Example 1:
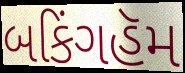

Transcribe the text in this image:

બકિંગહૅમ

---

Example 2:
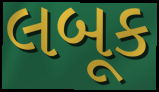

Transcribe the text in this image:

લબૂક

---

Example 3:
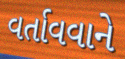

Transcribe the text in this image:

વર્તાવવાને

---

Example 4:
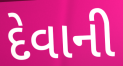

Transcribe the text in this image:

દેવાની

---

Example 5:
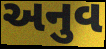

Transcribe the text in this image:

અનુવ